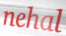
nehal